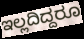
ಇಲ್ಲದಿದ್ದರೂ